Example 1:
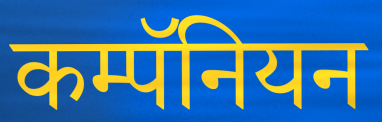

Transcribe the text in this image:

कम्पॅनियन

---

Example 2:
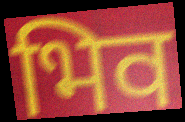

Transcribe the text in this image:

भिव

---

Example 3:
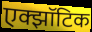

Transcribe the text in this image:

एक्झॉटिक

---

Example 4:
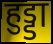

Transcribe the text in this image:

हुड्डा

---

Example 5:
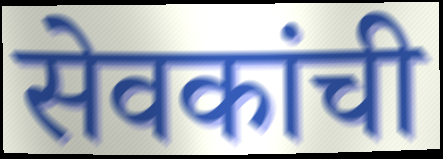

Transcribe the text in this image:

सेवकांची